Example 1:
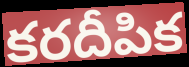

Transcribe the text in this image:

కరదీపిక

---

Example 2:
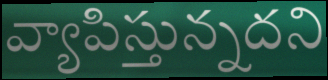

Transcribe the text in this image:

వ్యాపిస్తున్నదని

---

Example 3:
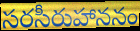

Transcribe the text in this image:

సరసీరుహాననం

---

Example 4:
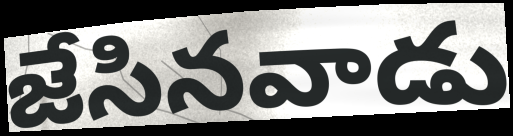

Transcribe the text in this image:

జేసినవాడు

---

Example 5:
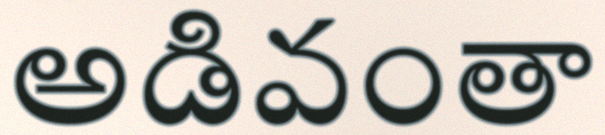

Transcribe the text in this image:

అడివంతా